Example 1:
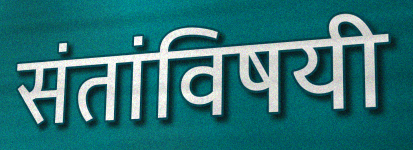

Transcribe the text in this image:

संतांविषयी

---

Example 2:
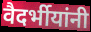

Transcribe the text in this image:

वैदर्भीयांनी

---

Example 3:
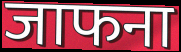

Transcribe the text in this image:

जाफना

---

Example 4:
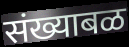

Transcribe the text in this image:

संख्याबळ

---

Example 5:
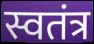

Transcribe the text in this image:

स्‍वतंत्र